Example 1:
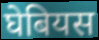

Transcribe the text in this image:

घेबियस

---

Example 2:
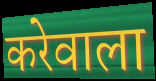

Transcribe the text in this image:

करेवाला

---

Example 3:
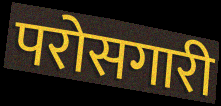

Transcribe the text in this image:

परोसगारी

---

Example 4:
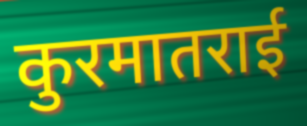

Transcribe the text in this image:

कुरमातराई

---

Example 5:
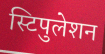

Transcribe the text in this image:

स्टिपुलेशन